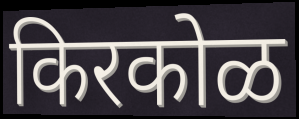
किरकोळ